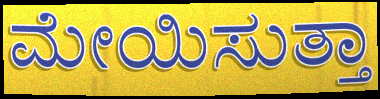
ಮೇಯಿಸುತ್ತಾ